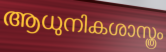
ആധുനികശാസ്ത്രം